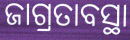
ଜାଗ୍ରତାବସ୍ଥା